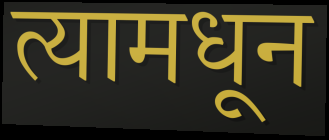
त्यामधून